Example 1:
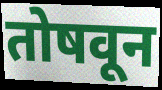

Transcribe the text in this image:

तोषवून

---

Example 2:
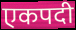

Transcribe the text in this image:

एकपदी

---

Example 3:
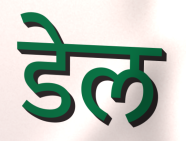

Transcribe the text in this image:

डेल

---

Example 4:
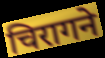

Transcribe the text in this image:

चिरागने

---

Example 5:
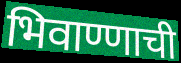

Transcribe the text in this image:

भिवाण्णाची